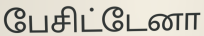
பேசிட்டேனா